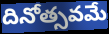
దినోత్సవమే